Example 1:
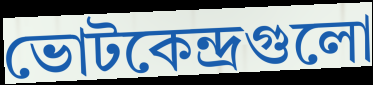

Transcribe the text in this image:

ভোটকেন্দ্রগুলো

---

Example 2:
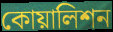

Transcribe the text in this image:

কোয়ালিশন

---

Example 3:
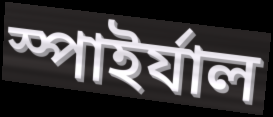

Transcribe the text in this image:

স্পাইর্যাল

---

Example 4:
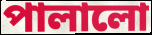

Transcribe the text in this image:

পালালো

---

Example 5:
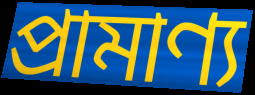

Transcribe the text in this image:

প্রামাণ্য